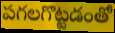
పగలగొట్టడంతో